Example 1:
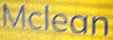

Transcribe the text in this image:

Mclean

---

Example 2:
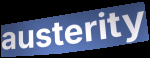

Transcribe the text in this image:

austerity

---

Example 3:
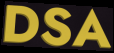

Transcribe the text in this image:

DSA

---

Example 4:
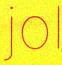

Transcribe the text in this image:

jol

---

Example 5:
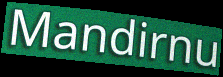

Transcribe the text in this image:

Mandirnu